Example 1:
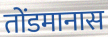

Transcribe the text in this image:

तोंडमानास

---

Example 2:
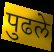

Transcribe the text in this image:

पुढले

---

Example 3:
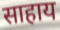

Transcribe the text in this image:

साहाय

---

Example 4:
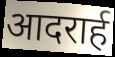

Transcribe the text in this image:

आदरार्ह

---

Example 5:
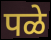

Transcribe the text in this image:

पळे